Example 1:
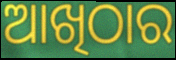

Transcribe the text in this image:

ଆଖିଠାର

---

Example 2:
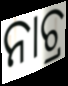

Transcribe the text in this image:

ନାଚ୍ର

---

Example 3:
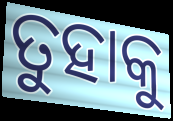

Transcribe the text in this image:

ତୁହାକୁ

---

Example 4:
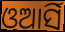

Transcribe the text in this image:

ଓଆର୍ସି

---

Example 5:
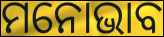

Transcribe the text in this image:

ମନୋଭାବ